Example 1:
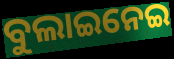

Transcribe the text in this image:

ବୁଲାଇନେଇ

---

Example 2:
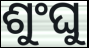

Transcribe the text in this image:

ଶୁଂଘୁ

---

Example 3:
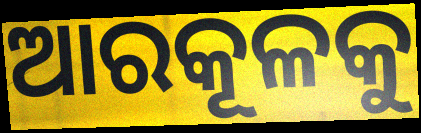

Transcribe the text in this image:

ଆରକୂଳକୁ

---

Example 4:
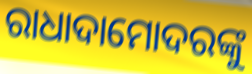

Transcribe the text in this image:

ରାଧାଦାମୋଦରଙ୍କୁ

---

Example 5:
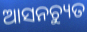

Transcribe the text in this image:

ଆସନଚ୍ୟୁତ